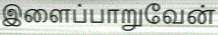
இளைப்பாறுவேன்